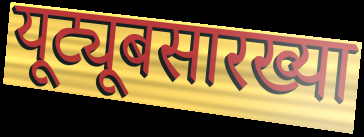
यूट्यूबसारख्या